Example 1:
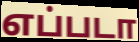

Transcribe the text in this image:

எப்படா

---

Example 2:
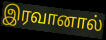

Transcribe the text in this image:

இரவானால்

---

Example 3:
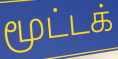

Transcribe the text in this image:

மூட்டக்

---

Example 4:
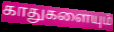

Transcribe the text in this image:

காதுகளையும்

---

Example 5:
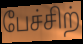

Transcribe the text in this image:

பேச்சிற்